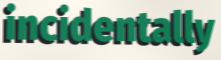
incidentally